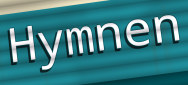
Hymnen